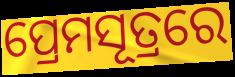
ପ୍ରେମସୂତ୍ରରେ